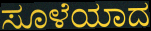
ಸೂಳೆಯಾದ